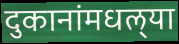
दुकानांमधल्या